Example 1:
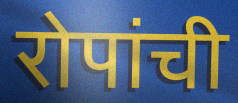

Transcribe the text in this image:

रोपांची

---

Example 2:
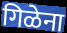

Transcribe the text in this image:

गिळेना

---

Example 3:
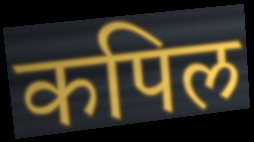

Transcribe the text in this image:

कपिल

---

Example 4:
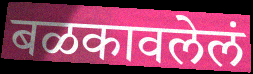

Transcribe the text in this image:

बळकावलेलं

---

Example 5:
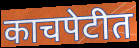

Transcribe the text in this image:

काचपेटीत